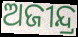
ଅଜୀନ୍ଦ୍ର